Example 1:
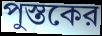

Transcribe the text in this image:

পুস্তকের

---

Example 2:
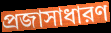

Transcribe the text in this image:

প্রজাসাধারণ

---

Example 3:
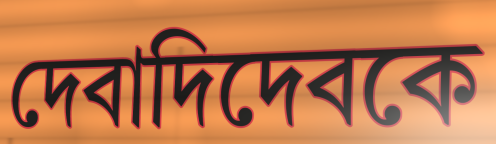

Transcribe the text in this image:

দেবাদিদেবকে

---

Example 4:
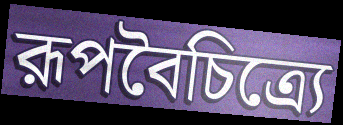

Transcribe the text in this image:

রূপবৈচিত্র্যে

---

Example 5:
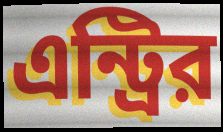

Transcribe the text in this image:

এন্ট্রির